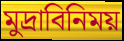
মুদ্রাবিনিময়